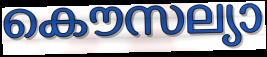
കൌസല്യാ